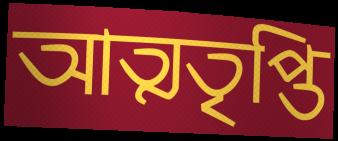
আত্মতৃপ্তি